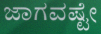
ಜಾಗವಷ್ಟೇ